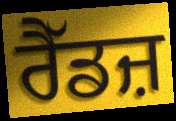
ਰੈੱਡਜ਼